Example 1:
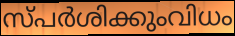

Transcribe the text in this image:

സ്പർശിക്കുംവിധം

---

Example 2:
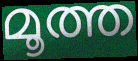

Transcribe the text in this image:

മൂത്ത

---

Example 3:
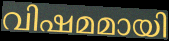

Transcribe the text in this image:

വിഷമമായി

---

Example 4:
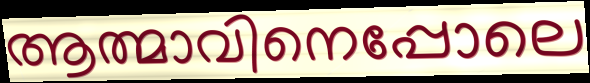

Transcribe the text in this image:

ആത്മാവിനെപ്പോലെ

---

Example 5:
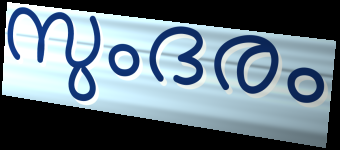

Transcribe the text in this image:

സുംദരം